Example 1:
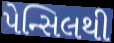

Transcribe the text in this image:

પેન્સિલથી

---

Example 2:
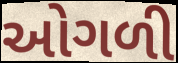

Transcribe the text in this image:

ઓગળી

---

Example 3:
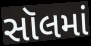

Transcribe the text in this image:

સૉલમાં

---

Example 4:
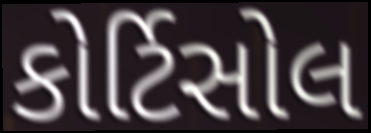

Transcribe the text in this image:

કોર્ટિસોલ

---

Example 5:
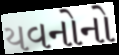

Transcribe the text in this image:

યવનોનો